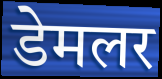
डेमलर